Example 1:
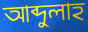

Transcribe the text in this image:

আব্দুলাহ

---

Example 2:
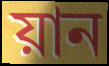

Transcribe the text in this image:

য়ান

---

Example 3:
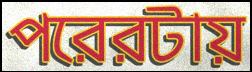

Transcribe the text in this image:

পরেরটায়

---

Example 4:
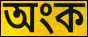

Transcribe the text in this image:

অংক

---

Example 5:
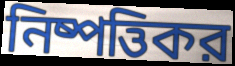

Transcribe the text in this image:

নিষ্পত্তিকর